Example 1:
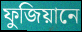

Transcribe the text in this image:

ফুজিয়ানে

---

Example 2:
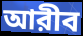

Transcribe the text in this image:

আরীব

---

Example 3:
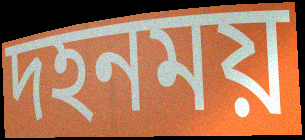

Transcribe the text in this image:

দহনময়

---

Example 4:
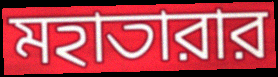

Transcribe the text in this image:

মহাতারার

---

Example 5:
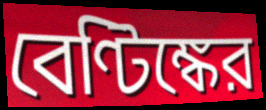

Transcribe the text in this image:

বেণ্টিঙ্কের